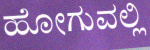
ಹೋಗುವಲ್ಲಿ